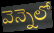
వెన్నెలో